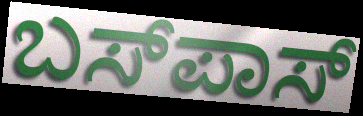
ಬಸ್‍ಪಾಸ್